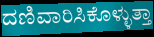
ದಣಿವಾರಿಸಿಕೊಳ್ಳುತ್ತಾ